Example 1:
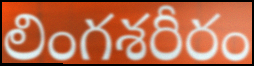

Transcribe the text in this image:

లింగశరీరం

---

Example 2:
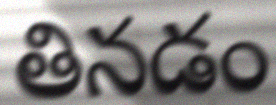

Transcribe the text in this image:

తినడం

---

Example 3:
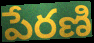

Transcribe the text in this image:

పేరణి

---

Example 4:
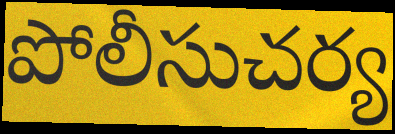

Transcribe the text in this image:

పోలీసుచర్య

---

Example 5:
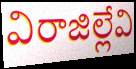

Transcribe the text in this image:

విరాజిల్లేవి